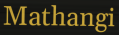
Mathangi